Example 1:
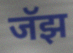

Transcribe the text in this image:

जॅझ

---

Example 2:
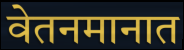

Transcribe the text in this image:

वेतनमानात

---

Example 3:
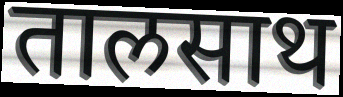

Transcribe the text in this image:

तालसाथ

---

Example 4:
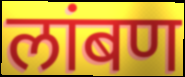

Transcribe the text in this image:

लांबण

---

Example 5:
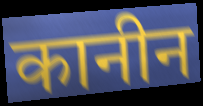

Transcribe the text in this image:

कानीन